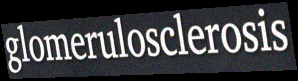
glomerulosclerosis